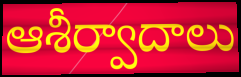
ఆశీర్వాదాలు